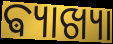
ଵ୍ୟାଖ୍ୟା